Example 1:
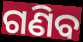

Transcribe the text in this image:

ଗଣିବ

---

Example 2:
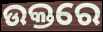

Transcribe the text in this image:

ଉକ୍ତରେ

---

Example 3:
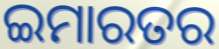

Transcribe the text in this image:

ଇମାରତର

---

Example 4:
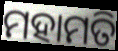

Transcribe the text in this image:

ମହାମତି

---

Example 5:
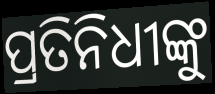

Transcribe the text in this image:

ପ୍ରତିନିଧୀଙ୍କୁ